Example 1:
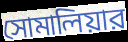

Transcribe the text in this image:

সোমালিয়ার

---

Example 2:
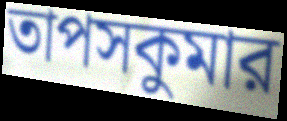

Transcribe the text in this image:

তাপসকুমার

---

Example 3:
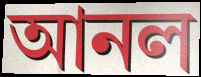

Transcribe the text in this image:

আনল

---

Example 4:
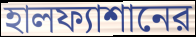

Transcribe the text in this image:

হালফ্যাশানের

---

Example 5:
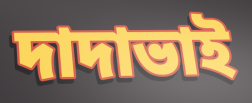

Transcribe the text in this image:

দাদাভাই